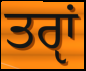
ਤਰੵਾਂ